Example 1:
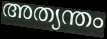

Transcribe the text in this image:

അത്യന്തം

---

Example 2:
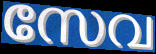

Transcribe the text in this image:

സേവ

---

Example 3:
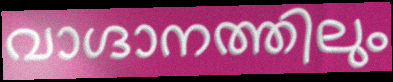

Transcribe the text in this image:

വാഗ്ദാനത്തിലും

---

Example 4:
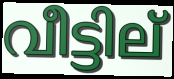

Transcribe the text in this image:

വീട്ടില്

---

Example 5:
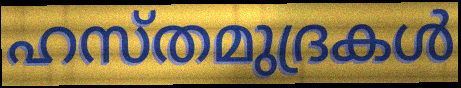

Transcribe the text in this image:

ഹസ്തമുദ്രകൾ